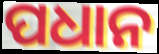
ପଧାନ